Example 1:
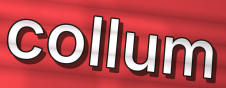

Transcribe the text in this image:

collum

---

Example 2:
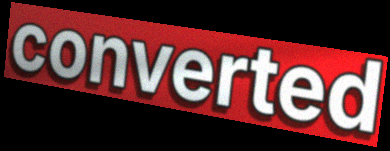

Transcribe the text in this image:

converted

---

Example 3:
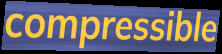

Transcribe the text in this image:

compressible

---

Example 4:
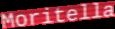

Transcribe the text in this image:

Moritella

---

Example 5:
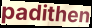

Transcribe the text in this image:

padithen